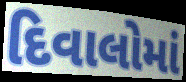
દિવાલોમાં